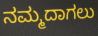
ನಮ್ಮದಾಗಲು